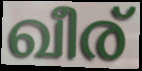
ഖീര്